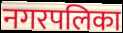
नगरपलिका